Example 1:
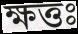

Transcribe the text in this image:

ক্ষত্তঃ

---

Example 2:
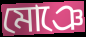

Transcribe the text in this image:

মোঞে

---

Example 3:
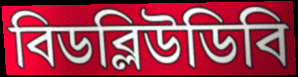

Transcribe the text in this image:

বিডব্লিউডিবি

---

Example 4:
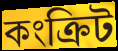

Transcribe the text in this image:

কংক্রিট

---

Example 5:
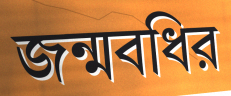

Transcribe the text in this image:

জন্মবধির